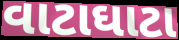
વાટાઘાટા